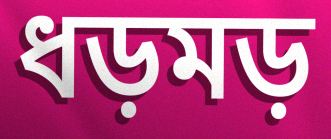
ধড়মড়